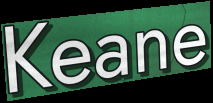
Keane